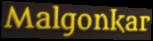
Malgonkar